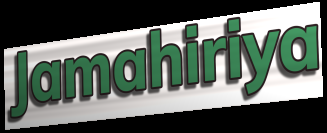
Jamahiriya